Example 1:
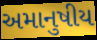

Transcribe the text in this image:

અમાનુષીય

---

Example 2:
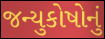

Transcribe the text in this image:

જન્યુકોષોનું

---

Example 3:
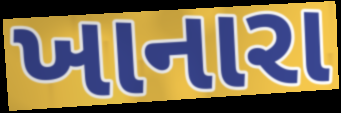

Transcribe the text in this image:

ખાનારા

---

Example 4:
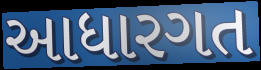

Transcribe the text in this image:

આધારગત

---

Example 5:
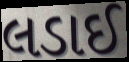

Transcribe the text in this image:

લડાઈ